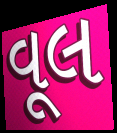
વૂલ